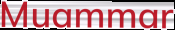
Muammar